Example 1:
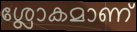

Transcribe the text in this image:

ശ്ലോകമാണ്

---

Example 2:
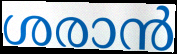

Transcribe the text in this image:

ശരാൻ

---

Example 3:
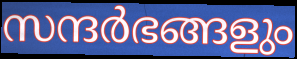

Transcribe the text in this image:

സന്ദർഭങ്ങളും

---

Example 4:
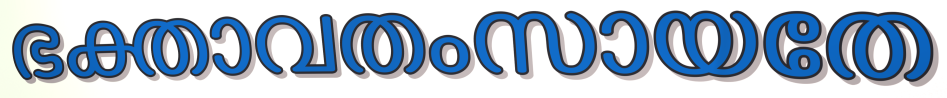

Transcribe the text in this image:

ഭക്താവതംസായതേ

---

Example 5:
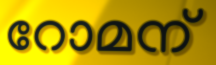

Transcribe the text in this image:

റോമന്